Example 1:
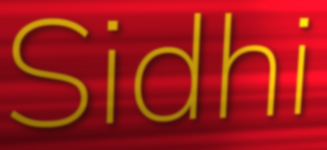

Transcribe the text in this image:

Sidhi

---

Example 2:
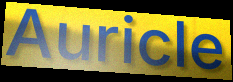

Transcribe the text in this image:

Auricle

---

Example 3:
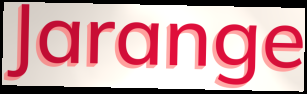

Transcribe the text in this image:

Jarange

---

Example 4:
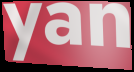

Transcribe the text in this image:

yan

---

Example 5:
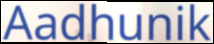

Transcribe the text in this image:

Aadhunik